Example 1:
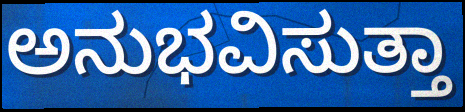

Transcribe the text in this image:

ಅನುಭವಿಸುತ್ತಾ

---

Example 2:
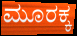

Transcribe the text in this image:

ಮೂರಕ್ಕ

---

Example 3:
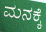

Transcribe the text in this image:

ಮನಕ್ಕೆ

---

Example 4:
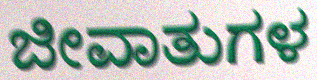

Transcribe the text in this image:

ಜೀವಾತುಗಳ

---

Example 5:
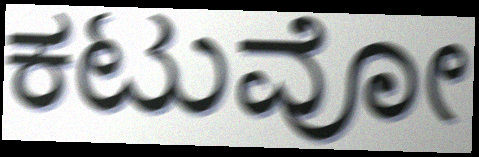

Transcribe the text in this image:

ಕಟುವೋ